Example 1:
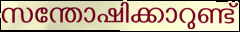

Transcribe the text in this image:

സന്തോഷിക്കാറുണ്ട്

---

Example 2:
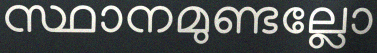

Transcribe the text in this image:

സ്ഥാനമുണ്ടല്ലോ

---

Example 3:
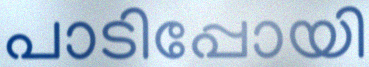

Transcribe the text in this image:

പാടിപ്പോയി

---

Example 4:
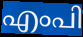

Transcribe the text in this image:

എംപി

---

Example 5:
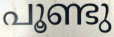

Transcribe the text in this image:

പൂണ്ടു